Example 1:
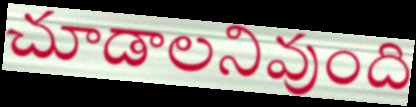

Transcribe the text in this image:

చూడాలనివుంది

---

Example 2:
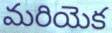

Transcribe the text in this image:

మరియెక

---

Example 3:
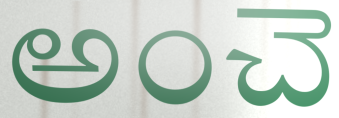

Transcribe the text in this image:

అంచె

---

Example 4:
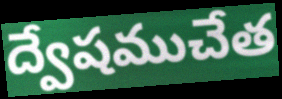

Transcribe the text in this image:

ద్వేషముచేత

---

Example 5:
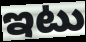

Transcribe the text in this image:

ఇటు